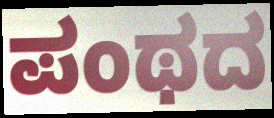
ಪಂಥದ